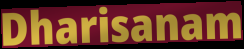
Dharisanam